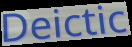
Deictic